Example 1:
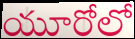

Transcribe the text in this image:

యూరోలో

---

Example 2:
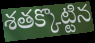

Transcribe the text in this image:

శతక్కొట్టిన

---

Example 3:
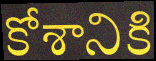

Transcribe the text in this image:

కోశానికి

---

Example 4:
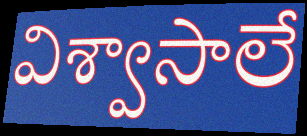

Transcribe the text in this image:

విశ్వాసాలే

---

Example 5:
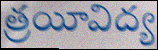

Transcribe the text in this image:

త్రయీవిద్య